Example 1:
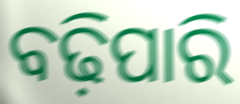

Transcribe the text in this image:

ବଢ଼ିପାରି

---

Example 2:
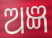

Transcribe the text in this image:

ଅଜ୍ଞ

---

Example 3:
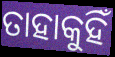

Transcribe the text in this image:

ତାହାକୁହିଁ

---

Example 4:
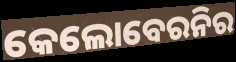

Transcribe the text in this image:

କେଲୋବେରନିର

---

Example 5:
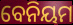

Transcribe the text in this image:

ବେନିୟମ